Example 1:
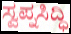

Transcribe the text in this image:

ಸ್ವಪ್ನಸಿದ್ಧಿ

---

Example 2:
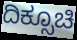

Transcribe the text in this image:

ದಿಕ್ಸೂಚಿ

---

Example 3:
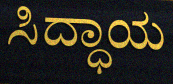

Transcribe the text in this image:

ಸಿದ್ಧಾಯ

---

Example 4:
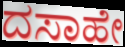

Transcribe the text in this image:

ದಸಾಹೇ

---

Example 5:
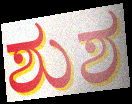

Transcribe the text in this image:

ಶುಶ